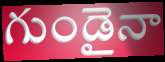
గుండైనా